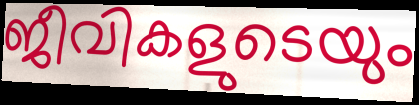
ജീവികളുടെയും